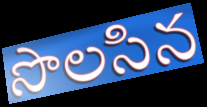
సొలసిన